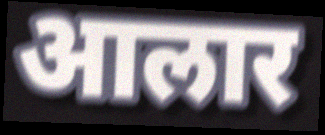
आलार